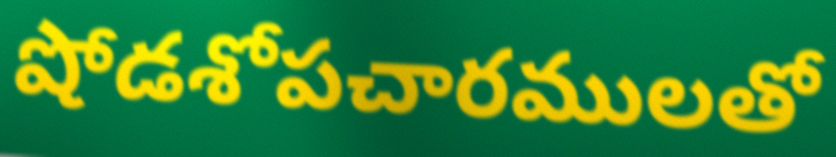
షోడశోపచారములతో